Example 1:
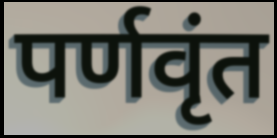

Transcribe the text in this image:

पर्णवृंत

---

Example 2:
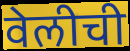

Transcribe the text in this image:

वेलीची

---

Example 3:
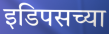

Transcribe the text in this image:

इडिपसच्या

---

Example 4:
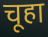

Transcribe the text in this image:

चूहा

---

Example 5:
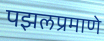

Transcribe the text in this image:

पझलप्रमाणे